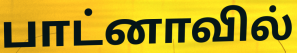
பாட்னாவில்